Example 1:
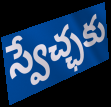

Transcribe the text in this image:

స్వేచ్ఛకు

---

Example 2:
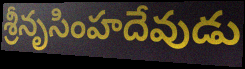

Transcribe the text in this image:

శ్రీనృసింహదేవుడు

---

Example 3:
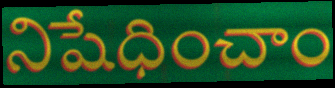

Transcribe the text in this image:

నిషేధించాం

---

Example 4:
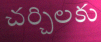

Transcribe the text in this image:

చర్చిలకు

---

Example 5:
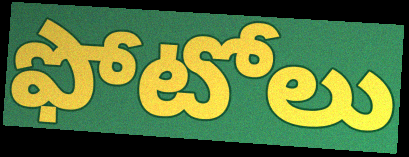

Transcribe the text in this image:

ఫోటోలు